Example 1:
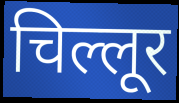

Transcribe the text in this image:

चिल्लूर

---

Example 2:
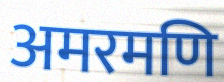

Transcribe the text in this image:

अमरमणि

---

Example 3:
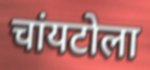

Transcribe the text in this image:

चांयटोला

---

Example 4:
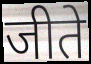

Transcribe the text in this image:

जीते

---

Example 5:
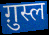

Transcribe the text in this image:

ग़ुस्ल